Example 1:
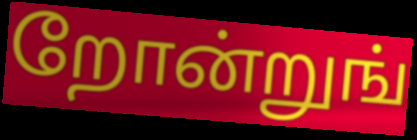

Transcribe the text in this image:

றோன்றுங்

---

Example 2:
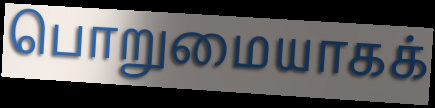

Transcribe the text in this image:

பொறுமையாகக்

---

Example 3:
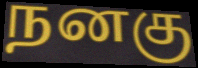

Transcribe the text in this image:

நனகு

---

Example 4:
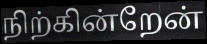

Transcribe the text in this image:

நிற்கின்றேன்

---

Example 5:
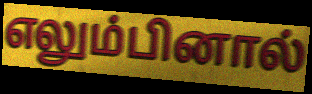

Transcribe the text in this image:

எலும்பினால்